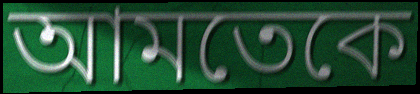
আমতেকে